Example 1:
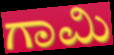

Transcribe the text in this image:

ಗಾಮಿ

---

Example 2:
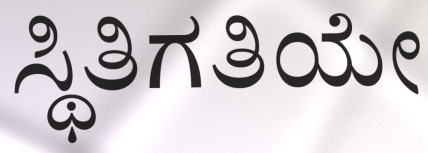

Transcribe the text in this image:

ಸ್ಥಿತಿಗತಿಯೇ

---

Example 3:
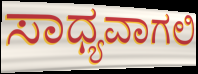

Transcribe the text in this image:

ಸಾಧ್ಯವಾಗಲಿ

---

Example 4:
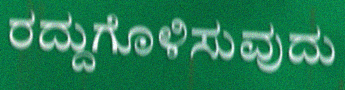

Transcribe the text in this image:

ರದ್ದುಗೊಳಿಸುವುದು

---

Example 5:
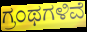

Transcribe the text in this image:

ಗ್ರಂಥಗಳಿವೆ